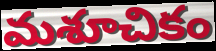
మశూచికం